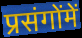
प्रसंगोंमें